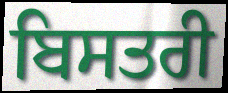
ਬਿਸਤਰੀ